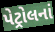
પેટ્રોલનાં